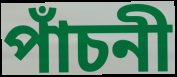
পাঁচনী